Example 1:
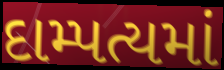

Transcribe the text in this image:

દામ્પત્યમાં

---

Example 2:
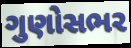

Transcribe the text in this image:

ગુણોસભર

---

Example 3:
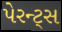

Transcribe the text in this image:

પેરન્ટ્સ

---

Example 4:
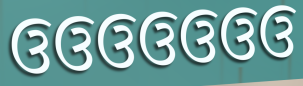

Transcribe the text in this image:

ઉઉઉઉઉઉઉ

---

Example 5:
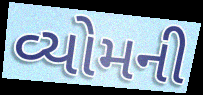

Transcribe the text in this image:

વ્યોમની